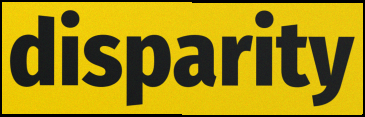
disparity